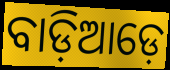
ବାଡ଼ିଆଡ଼େ